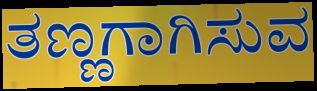
ತಣ್ಣಗಾಗಿಸುವ